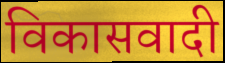
विकासवादी